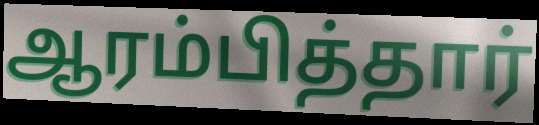
ஆரம்பித்தார்